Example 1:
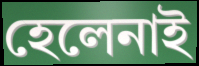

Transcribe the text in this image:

হেলেনাই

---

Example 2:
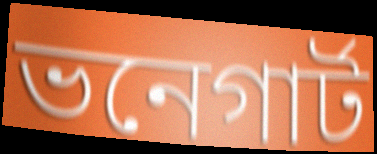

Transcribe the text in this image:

ভনেগার্ট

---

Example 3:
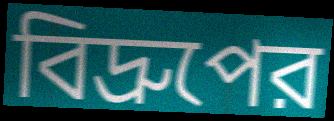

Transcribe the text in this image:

বিদ্রুপের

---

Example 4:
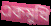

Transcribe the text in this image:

একমুখি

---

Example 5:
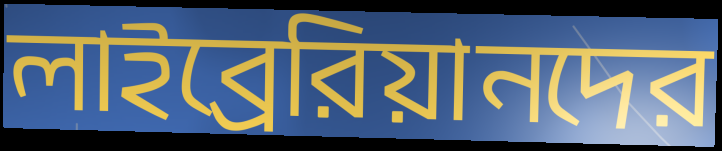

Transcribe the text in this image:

লাইব্রেরিয়ানদের